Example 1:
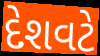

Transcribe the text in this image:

દેશવટે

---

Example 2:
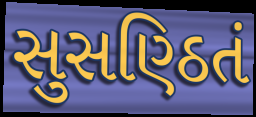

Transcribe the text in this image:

સુસણ્ઠિતં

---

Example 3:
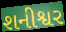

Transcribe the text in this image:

શનીશ્વર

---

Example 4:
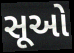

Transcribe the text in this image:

સૂઓ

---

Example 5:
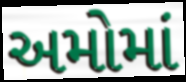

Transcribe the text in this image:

અમોમાં